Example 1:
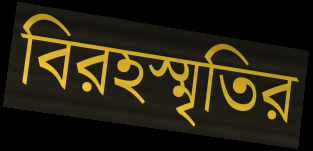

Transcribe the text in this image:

বিরহস্মৃতির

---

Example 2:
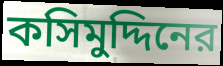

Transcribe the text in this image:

কসিমুদ্দিনের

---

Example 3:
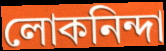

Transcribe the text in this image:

লোকনিন্দা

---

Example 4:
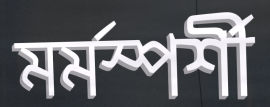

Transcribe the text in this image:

মর্মস্পর্শী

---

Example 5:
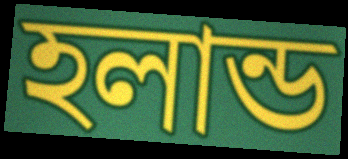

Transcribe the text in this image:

হলান্ড